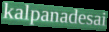
kalpanadesai